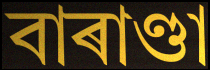
বাৰাণ্ডা